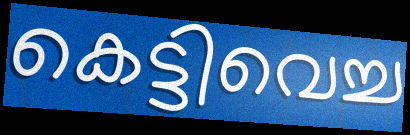
കെട്ടിവെച്ച